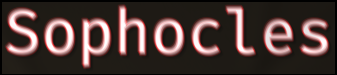
Sophocles